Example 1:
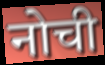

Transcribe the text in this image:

नोची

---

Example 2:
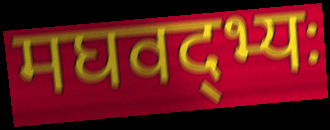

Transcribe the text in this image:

मघवद्भ्यः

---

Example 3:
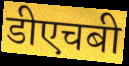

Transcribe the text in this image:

डीएचबी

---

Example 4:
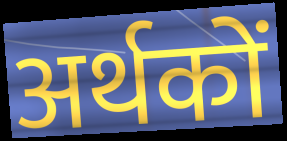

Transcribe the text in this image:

अर्थकों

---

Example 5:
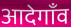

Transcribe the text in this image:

आदेगाँव